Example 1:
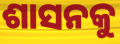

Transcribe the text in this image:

ଶାସନକୁ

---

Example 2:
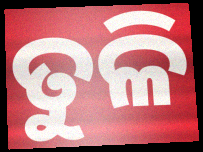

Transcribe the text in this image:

ତୁଳି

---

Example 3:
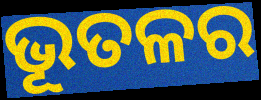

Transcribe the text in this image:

ଭୂତଳର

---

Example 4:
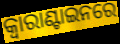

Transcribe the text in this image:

କ୍ବାରାଣ୍ଟାଇନରେ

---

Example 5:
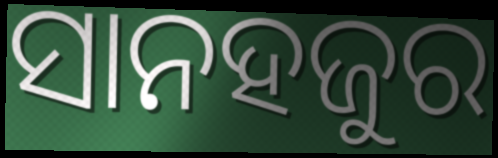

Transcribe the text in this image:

ସାନହଜୁର